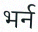
भर्न